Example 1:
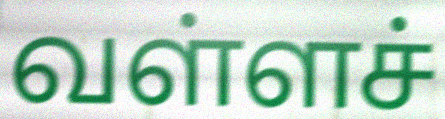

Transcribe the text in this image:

வள்ளச்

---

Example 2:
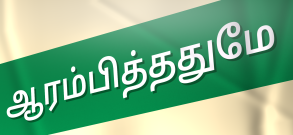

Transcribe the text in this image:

ஆரம்பித்ததுமே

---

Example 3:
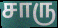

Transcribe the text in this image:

சாரு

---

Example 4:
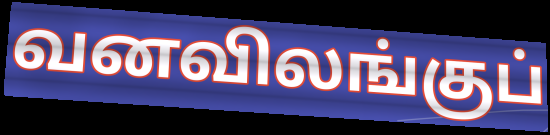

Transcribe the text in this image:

வனவிலங்குப்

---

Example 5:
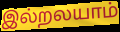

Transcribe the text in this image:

இல்றலயாம்